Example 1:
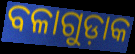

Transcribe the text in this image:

ବଳାଗୁଡ଼ାକ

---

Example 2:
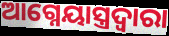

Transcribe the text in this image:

ଆଗ୍ନେୟାସ୍ତ୍ରଦ୍ୱାରା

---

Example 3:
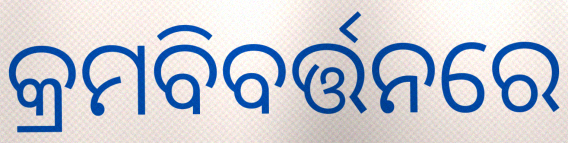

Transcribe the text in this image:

କ୍ରମବିବର୍ତ୍ତନରେ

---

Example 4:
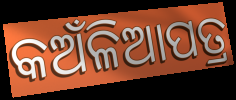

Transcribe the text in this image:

କଅଁଳିଆପତ୍ର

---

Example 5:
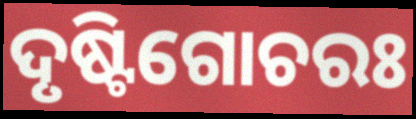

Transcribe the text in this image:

ଦୃଷ୍ଟିଗୋଚରଃ